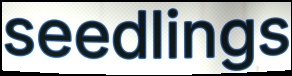
seedlings